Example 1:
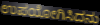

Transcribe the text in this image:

ಉಪಯೋಗಿಸಿದನು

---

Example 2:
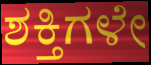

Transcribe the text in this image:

ಶಕ್ತಿಗಳೇ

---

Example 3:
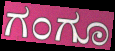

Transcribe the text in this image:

ಗಂಗೂ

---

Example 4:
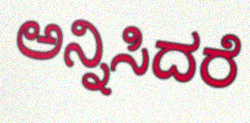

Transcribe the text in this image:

ಅನ್ನಿಸಿದರೆ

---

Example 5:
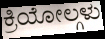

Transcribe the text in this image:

ಕ್ರಿಯೋಲ್ಗಳು